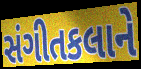
સંગીતકલાને